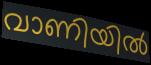
വാണിയിൽ